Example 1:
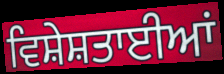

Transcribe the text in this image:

ਵਿਸ਼ੇਸ਼ਤਾਈਆਂ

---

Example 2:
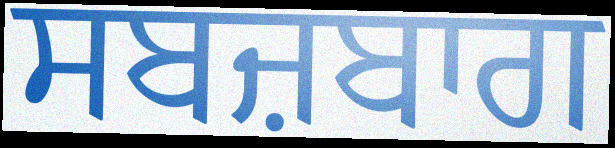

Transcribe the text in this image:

ਸਬਜ਼ਬਾਗ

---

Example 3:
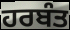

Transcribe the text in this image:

ਹਰਬੰਤ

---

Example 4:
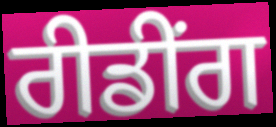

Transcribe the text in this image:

ਰੀਡੀਂਗ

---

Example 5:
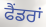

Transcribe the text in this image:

ਫੈਂਡਰਾਂ